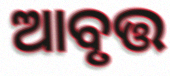
ଆବୃତ୍ତ